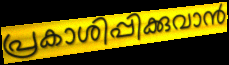
പ്രകാശിപ്പിക്കുവാൻ